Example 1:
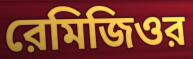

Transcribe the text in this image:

রেমিজিওর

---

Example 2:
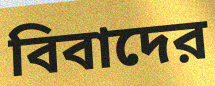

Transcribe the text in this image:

বিবাদের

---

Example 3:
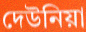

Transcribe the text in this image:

দেউনিয়া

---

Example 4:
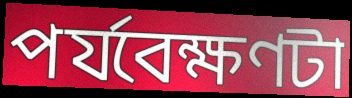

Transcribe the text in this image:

পর্যবেক্ষণটা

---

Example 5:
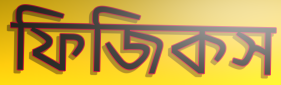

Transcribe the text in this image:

ফিজিকস